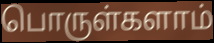
பொருள்களாம்